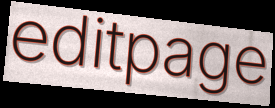
editpage